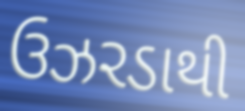
ઉઝરડાથી